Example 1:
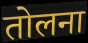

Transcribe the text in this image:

तोलना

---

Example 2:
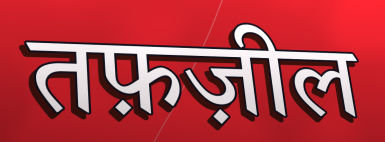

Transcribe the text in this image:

तफ़ज़ील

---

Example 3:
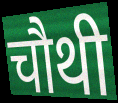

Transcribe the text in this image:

चौथी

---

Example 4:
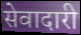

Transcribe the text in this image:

सेवादारी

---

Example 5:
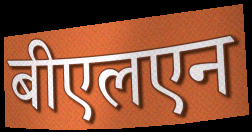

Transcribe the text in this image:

बीएलएन